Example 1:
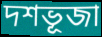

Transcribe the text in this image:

দশভূজা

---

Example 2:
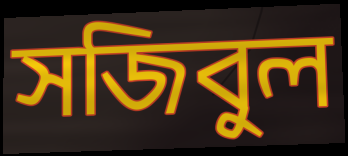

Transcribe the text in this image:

সজিবুল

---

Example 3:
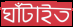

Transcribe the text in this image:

ঘাঁটাইত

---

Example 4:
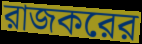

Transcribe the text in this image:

রাজকরের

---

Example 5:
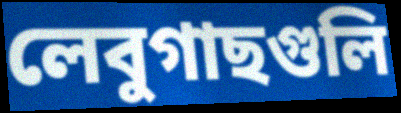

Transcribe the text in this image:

লেবুগাছগুলি